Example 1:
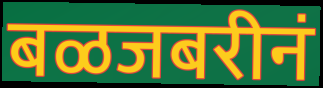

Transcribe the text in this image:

बळजबरीनं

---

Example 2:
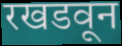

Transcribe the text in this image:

रखडवून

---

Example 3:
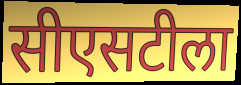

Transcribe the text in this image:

सीएसटीला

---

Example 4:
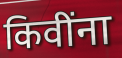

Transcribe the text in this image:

किवींना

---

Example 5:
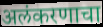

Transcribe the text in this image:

अलंकरणाचा